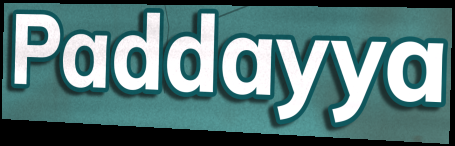
Paddayya